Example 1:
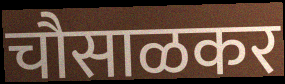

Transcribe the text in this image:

चौसाळकर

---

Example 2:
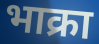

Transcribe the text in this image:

भाक्रा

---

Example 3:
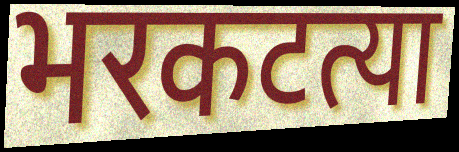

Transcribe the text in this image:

भरकटत्या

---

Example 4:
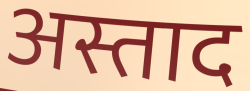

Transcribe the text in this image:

अस्ताद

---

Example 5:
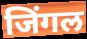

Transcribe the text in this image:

जिंगल